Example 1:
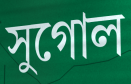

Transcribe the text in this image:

সুগোল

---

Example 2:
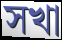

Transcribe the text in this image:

সখা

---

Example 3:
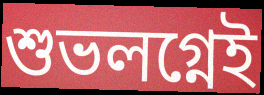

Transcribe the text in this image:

শুভলগ্নেই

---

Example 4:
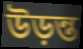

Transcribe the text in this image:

উড়ন্ত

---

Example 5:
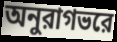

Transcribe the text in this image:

অনুরাগভরে